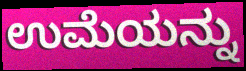
ಉಮೆಯನ್ನು